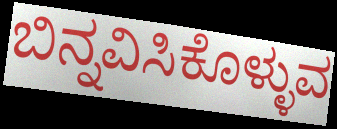
ಬಿನ್ನವಿಸಿಕೊಳ್ಳುವ